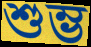
শুম্ভ